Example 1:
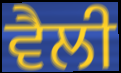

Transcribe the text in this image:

ਵੈਲੀ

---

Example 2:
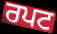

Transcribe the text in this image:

ਰਪਟ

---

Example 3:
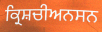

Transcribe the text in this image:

ਕ੍ਰਿਸ਼ਚੀਅਨਸਨ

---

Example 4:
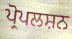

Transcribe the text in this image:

ਪ੍ਰੋਪਲਸ਼ਨ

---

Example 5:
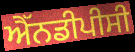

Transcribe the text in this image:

ਐੱਨਡੀਪੀਸੀ